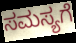
ಸಮಸ್ಯಗೆ